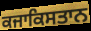
ਕਜਾਕਿਸਤਾਨ